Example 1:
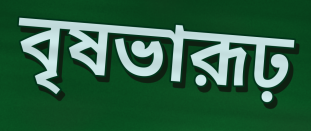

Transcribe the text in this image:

বৃষভারূঢ়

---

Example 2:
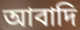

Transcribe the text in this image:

আবাদি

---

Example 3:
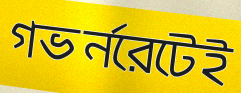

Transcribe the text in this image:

গভর্নরেটেই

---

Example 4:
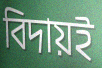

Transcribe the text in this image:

বিদায়ই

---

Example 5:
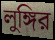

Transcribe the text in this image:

লুঙ্গির